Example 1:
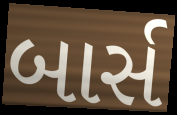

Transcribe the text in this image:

બાર્સ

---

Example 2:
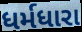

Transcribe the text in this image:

ધર્મધારા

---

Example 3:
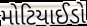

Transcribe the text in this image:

મોટિયાઈડો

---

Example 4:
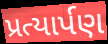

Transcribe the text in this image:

પ્રત્યાર્પણ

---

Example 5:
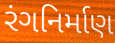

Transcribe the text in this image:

રંગનિર્માણ